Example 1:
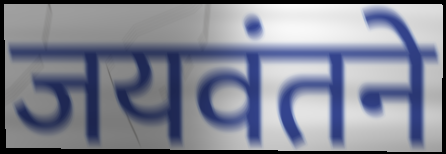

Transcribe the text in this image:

जयवंतने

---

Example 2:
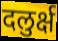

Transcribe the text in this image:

दलुर्क्ष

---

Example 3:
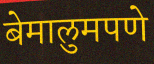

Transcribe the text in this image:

बेमालुमपणे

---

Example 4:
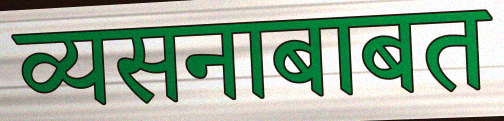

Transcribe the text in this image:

व्यसनाबाबत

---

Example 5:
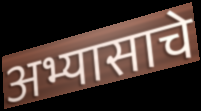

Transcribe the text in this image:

अभ्यासाचे